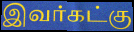
இவர்கட்கு